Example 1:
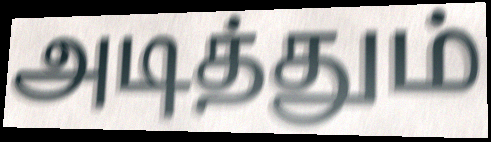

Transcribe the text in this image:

அடித்தும்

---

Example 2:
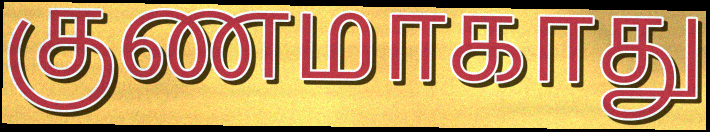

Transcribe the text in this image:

குணமாகாது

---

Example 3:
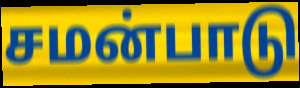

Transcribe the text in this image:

சமன்பாடு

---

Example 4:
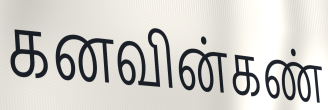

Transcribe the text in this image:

கனவின்கண்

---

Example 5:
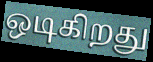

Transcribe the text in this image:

ஒடிகிறது